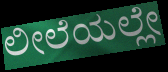
ಲೀಲೆಯಲ್ಲೇ